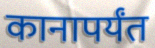
कानापर्यंत